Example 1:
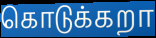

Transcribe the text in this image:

கொடுக்கறா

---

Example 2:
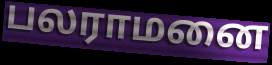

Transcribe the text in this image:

பலராமனை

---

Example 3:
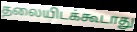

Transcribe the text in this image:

தலையிடக்கூடாது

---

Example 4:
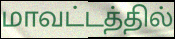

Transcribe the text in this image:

மாவட்டத்தில்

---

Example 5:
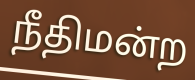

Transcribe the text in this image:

நீதிமன்ற